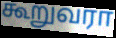
கூறுவரா